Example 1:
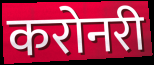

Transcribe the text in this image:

करोनरी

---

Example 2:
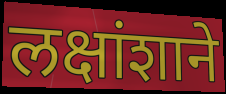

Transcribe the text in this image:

लक्षांशाने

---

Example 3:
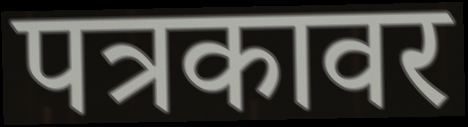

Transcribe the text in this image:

पत्रकावर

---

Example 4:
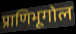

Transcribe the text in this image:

प्राणिभूगोल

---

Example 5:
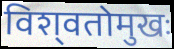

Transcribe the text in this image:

विश्वतोमुखः